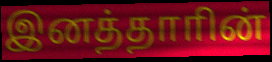
இனத்தாரின்